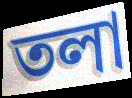
তলা